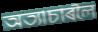
অত্যাচাৰলৈ